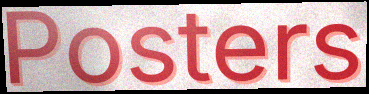
Posters